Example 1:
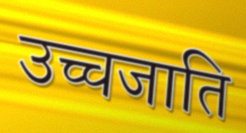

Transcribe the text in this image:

उच्चजाति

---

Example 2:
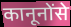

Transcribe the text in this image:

कानूनोंसे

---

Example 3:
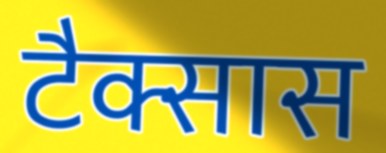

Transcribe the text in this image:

टैक्सास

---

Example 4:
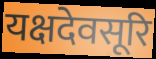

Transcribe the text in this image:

यक्षदेवसूरि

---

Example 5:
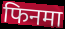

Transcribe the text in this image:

फिनमा